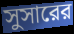
সুসারের